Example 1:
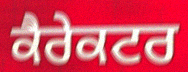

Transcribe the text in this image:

ਕੈਰੇਕਟਰ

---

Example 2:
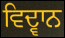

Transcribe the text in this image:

ਵਿਦ੍ਵਾਨ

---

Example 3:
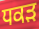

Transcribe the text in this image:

ਧਕੜ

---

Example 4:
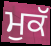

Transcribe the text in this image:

ਮੁਕੱ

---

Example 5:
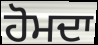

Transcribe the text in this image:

ਹੋਮਦਾ